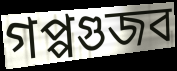
গপ্পগুজব